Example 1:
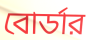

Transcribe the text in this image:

বোর্ডার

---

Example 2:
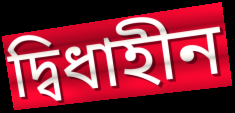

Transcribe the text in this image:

দ্বিধাহীন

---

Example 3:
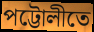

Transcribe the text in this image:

পট্টোলীতে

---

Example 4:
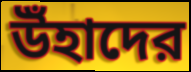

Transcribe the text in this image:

উঁহাদের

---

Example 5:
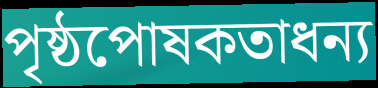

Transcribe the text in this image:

পৃষ্ঠপোষকতাধন্য